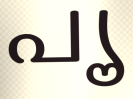
പൄ